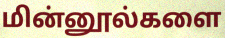
மின்னூல்களை